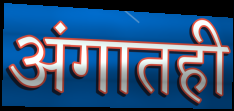
अंगातही